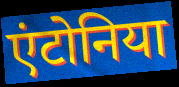
एंटोनिया